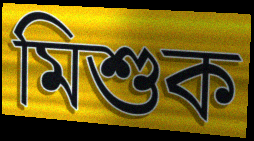
মিশুক